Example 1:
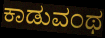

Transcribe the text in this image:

ಕಾಡುವಂಥ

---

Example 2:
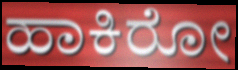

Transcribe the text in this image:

ಹಾಕಿರೋ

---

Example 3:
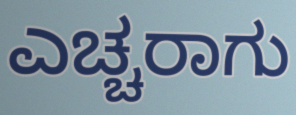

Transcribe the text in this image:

ಎಚ್ಚರಾಗು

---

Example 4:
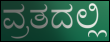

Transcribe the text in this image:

ವ್ರತದಲ್ಲಿ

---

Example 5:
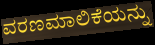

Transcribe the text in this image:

ವರಣಮಾಲಿಕೆಯನ್ನು